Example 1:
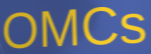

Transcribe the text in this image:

OMCs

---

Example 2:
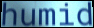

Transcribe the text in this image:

humid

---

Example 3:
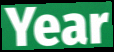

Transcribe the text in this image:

Year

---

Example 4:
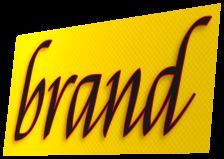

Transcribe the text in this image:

brand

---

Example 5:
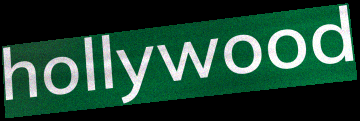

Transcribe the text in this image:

hollywood